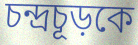
চন্দ্রচূড়কে